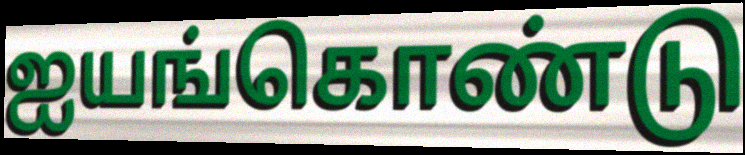
ஐயங்கொண்டு